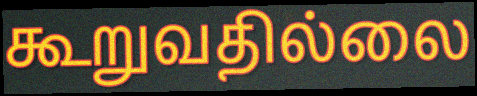
கூறுவதில்லை